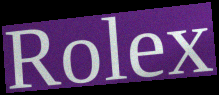
Rolex